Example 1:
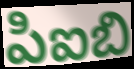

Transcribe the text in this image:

పిఐబి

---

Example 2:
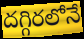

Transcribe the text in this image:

దగ్గిరలోనే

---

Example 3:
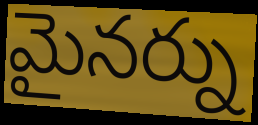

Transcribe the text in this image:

మైనర్ను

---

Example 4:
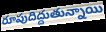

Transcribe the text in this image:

రూపుదిద్దుతున్నాయి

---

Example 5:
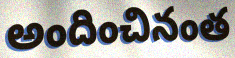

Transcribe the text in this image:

అందించినంత